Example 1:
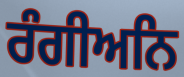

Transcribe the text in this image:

ਰੰਗੀਅਨਿ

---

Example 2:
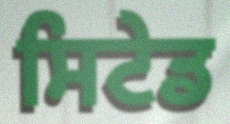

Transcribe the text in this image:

ਸਿਟੇਡ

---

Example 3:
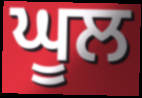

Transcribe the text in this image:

ਘੂਲ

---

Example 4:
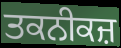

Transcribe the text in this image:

ਤਕਨੀਕਜ਼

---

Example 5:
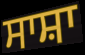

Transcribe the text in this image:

ਸਾਸ਼ਾ